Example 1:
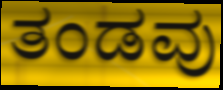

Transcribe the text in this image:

ತಂಡವು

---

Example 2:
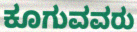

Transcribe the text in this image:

ಕೂಗುವವರು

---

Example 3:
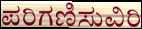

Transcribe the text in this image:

ಪರಿಗಣಿಸುವಿರಿ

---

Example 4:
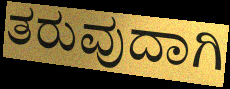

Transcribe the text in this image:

ತರುವುದಾಗಿ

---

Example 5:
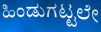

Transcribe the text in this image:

ಹಿಂಡುಗಟ್ಟಲೇ